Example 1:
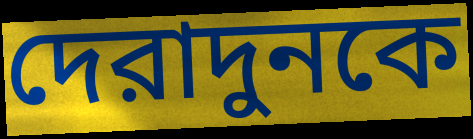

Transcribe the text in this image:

দেরাদুনকে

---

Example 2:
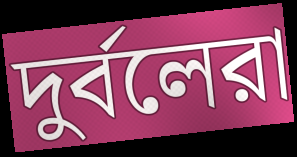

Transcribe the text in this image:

দুর্বলেরা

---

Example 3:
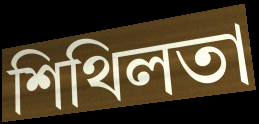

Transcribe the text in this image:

শিথিলতা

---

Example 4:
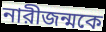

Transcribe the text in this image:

নারীজন্মকে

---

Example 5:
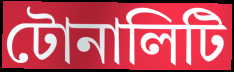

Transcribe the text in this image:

টোনালিটি